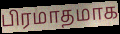
பிரமாதமாக